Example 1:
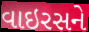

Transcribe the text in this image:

વાઇરસને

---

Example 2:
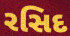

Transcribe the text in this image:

રસિદ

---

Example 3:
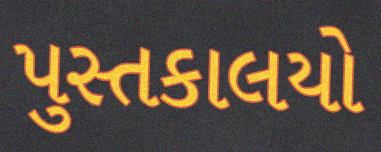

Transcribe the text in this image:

પુસ્તકાલયો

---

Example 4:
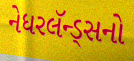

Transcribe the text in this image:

નેધરલૅન્ડ્સનો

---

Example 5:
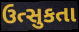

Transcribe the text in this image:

ઉત્સુકતા